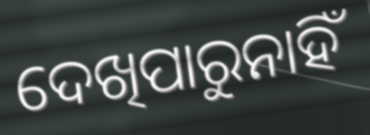
ଦେଖିପାରୁନାହିଁ